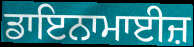
ਡਾਇਨਾਮਾਈਜ਼